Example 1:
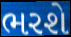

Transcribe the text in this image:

ભરશે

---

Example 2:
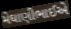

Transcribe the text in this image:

મેઘાણીભાઈએ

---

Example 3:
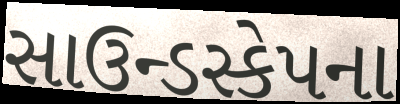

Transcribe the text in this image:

સાઉન્ડસ્કેપના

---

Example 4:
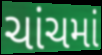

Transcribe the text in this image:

ચાંચમાં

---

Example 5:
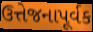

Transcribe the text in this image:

ઉત્તેજનાપૂર્વક